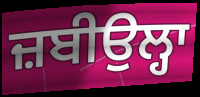
ਜ਼ਬੀਉਲ੍ਹਾ